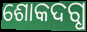
ଶୋକଦଗ୍ଧ